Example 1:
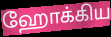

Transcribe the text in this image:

ஹோக்கிய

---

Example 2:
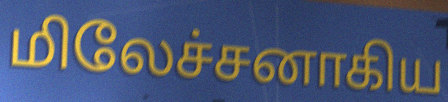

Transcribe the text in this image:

மிலேச்சனாகிய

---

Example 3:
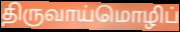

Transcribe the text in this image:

திருவாய்மொழிப்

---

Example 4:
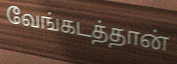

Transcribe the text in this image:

வேங்கடத்தான்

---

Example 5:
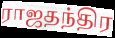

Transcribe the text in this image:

ராஜதந்திர